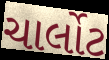
ચાર્લોટ